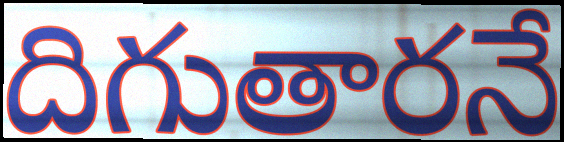
దిగుతారనే